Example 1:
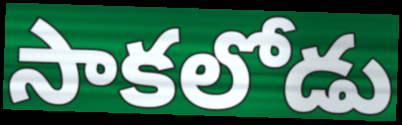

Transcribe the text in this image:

సాకలోడు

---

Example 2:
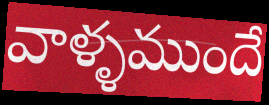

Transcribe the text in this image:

వాళ్ళముందే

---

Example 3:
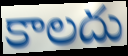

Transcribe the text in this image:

కాలదు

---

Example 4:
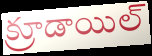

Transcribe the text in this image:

క్రూడాయిల్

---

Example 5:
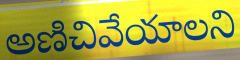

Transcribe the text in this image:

అణిచివేయాలని